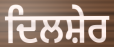
ਦਿਲਸ਼ੇਰ